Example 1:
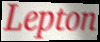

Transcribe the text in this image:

Lepton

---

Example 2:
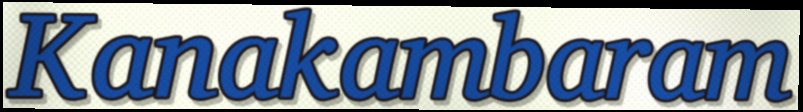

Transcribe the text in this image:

Kanakambaram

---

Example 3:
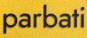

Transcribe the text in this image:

parbati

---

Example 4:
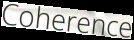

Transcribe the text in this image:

Coherence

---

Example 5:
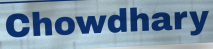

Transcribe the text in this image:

Chowdhary